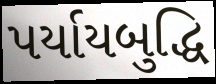
પર્યાયબુદ્ધિ